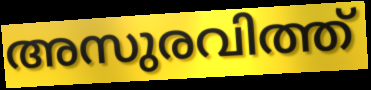
അസുരവിത്ത്